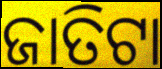
ଜାତିଟା